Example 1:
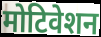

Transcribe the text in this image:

मोटिवेशन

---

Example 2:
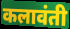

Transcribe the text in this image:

कलावंती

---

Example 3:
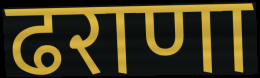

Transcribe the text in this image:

ढराणा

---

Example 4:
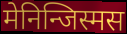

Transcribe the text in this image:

मेनिन्जिस्मस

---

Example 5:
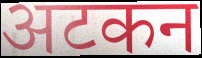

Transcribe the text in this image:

अटकन